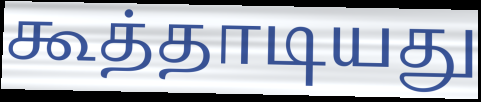
கூத்தாடியது